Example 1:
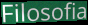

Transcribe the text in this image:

Filosofia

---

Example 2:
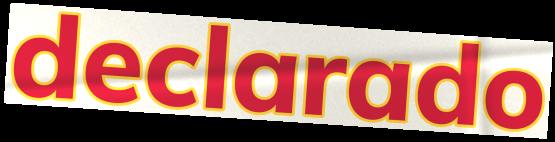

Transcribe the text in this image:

declarado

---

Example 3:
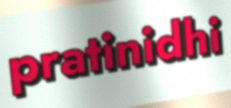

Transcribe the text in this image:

pratinidhi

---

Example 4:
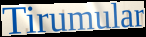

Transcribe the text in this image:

Tirumular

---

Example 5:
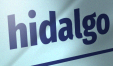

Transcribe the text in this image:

hidalgo